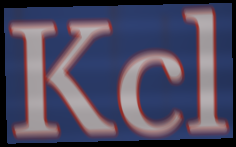
Kcl